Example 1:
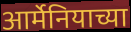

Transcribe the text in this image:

आर्मेनियाच्या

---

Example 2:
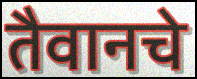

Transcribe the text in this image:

तैवानचे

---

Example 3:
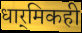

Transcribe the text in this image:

धार्मिकही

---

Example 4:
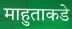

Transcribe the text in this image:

माहुताकडे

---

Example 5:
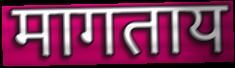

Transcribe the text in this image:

मागताय